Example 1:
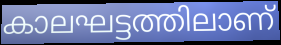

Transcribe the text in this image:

കാലഘട്ടത്തിലാണ്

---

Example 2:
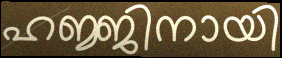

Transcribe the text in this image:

ഹജ്ജിനായി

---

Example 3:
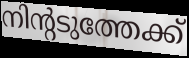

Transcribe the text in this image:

നിന്റടുത്തേക്ക്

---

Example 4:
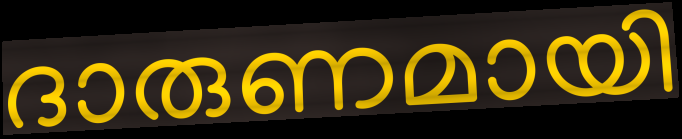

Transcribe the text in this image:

ദാരുണമായി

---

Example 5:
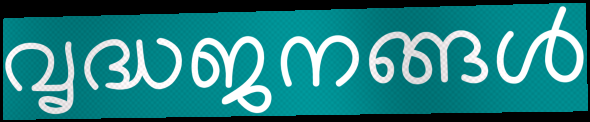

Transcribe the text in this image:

വൃദ്ധജനങ്ങൾ